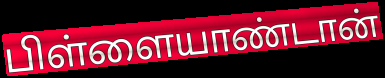
பிள்ளையாண்டான்